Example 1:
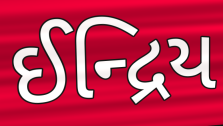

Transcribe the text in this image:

ઈન્દ્રિય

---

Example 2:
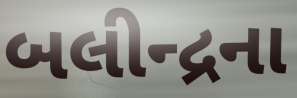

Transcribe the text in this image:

બલીન્દ્રના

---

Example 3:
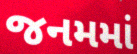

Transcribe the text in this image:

જનમમાં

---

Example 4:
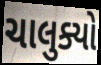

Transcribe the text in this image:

ચાલુક્યો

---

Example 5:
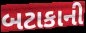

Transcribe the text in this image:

બટાકાની